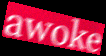
awoke